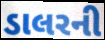
ડાલરની